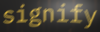
signify